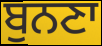
ਬੁਨਣਾ